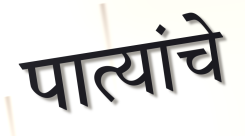
पात्यांचे